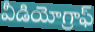
వీడియోగ్రాఫ్